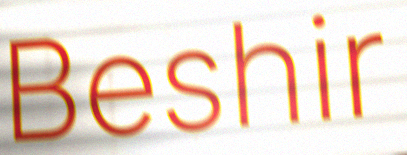
Beshir